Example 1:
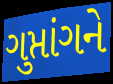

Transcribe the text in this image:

ગુપ્તાંગને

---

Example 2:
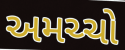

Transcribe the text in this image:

અમચ્ચો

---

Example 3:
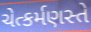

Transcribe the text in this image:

ચેત્કર્મણસ્તે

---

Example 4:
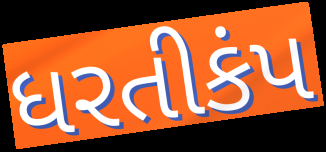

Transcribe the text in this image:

ધરતીકંપ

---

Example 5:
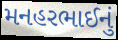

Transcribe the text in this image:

મનહરભાઈનું